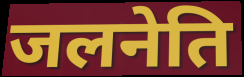
जलनेति